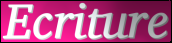
Ecriture